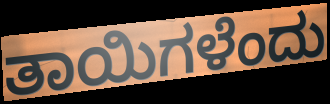
ತಾಯಿಗಳೆಂದು